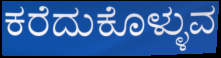
ಕರೆದುಕೊಳ್ಳುವ